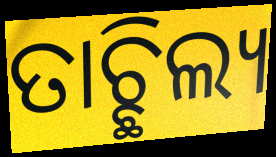
ତାଚ୍ଛିଲ୍ୟ